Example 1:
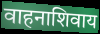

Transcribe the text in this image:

वाहनाशिवाय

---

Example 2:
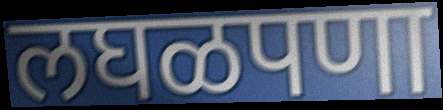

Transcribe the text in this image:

लघळपणा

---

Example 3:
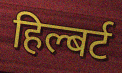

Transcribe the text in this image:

हिल्बर्ट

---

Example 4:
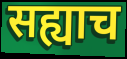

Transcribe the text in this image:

सह्याच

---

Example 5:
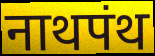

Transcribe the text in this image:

नाथपंथ